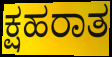
ಕ್ಷಹರಾತ